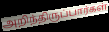
அறிந்திருப்பார்கள்